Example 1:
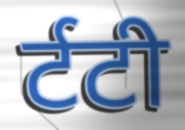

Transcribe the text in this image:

र्टटी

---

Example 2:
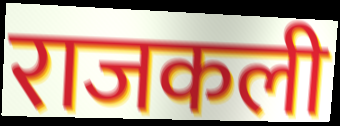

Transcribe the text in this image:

राजकली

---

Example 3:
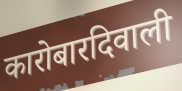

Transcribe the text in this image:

कारोबारदिवाली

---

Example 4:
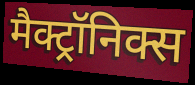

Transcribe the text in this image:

मैक्ट्रॉनिक्स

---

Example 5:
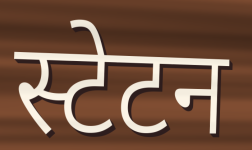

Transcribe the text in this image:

स्टेटन